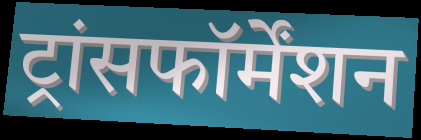
ट्रांसफॉर्मेंशन